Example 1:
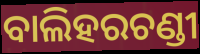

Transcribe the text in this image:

ବାଲିହରଚଣ୍ଡୀ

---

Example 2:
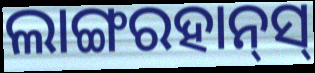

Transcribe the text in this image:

ଲାଙ୍ଗରହାନ୍‌ସ୍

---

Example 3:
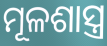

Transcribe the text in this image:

ମୂଳଶାସ୍ତ୍ର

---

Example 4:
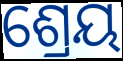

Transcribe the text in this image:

ଶ୍ରେୟ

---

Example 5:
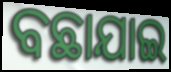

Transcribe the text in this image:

ବଛାଯାଇ